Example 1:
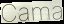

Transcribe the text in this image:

Cama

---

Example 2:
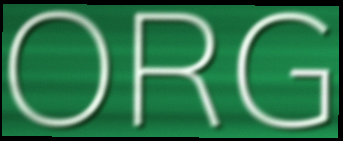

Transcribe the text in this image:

ORG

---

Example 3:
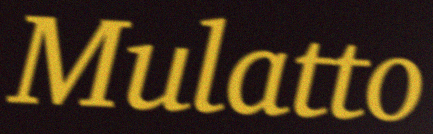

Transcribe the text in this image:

Mulatto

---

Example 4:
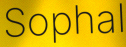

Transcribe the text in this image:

Sophal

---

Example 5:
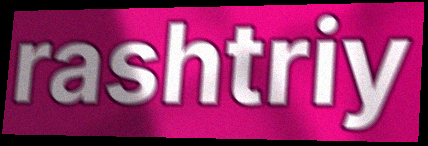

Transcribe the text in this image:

rashtriy